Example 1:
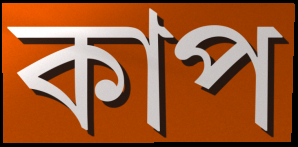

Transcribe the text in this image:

কাপ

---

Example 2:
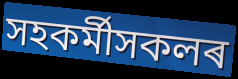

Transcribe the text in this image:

সহকৰ্মীসকলৰ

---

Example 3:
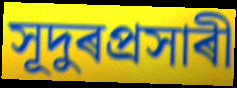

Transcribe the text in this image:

সূদুৰপ্ৰসাৰী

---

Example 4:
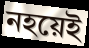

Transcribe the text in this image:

নহয়েই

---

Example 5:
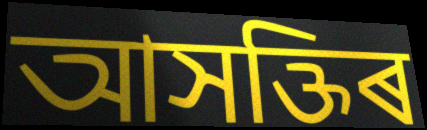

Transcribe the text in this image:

আসক্তিৰ